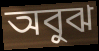
অবুঝ